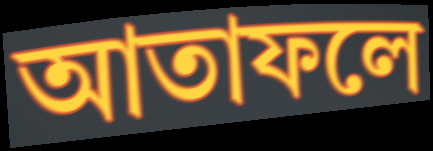
আতাফলে